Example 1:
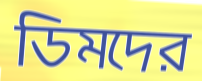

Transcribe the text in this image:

ডিমদের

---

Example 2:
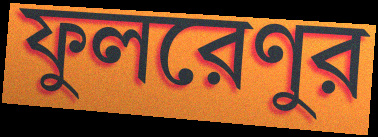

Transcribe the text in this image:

ফুলরেণুর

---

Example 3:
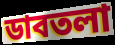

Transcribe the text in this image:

ডাবতলা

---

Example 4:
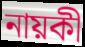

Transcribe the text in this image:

নায়কী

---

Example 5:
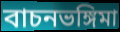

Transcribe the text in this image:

বাচনভঙ্গিমা